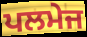
ਪਲਮੇਜ